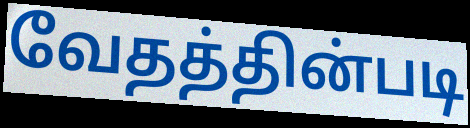
வேதத்தின்படி